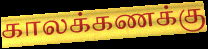
காலக்கணக்கு